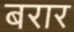
बरार